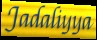
Jadaliyya